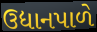
ઉદ્યાનપાળે